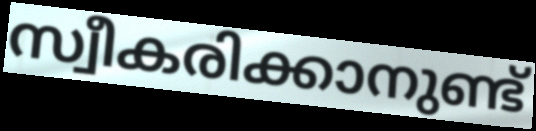
സ്വീകരിക്കാനുണ്ട്